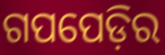
ଗପପେଡ଼ିର